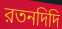
রতনদিদি